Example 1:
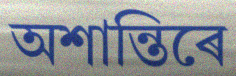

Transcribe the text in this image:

অশান্তিৰে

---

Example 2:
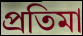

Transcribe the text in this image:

প্ৰতিমা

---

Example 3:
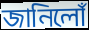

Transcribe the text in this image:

জানিলোঁ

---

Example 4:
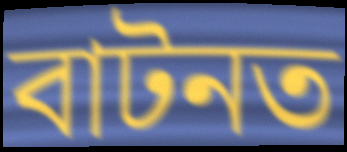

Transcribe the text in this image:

বাটনত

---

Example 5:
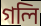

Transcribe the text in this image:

গলি